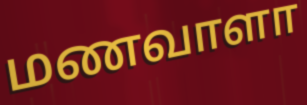
மணவாளா